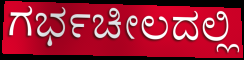
ಗರ್ಭಚೀಲದಲ್ಲಿ